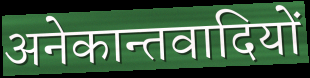
अनेकान्तवादियों